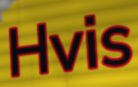
Hvis